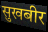
सुखबीर